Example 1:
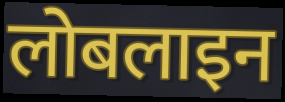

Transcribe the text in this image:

लोबलाइन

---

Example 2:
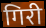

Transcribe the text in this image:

गिरी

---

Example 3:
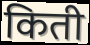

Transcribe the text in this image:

किती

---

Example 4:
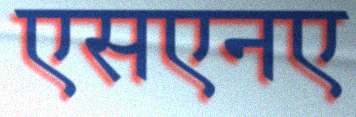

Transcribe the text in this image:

एसएनए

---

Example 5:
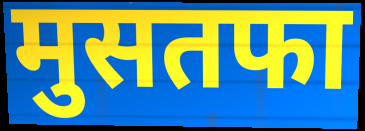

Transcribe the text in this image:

मुसतफा